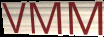
VMM